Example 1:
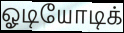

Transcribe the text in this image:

ஓடியோடிக்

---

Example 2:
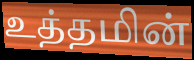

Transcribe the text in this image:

உத்தமின்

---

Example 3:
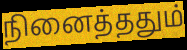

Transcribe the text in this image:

நினைத்ததும்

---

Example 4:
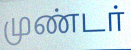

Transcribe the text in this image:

முண்டர்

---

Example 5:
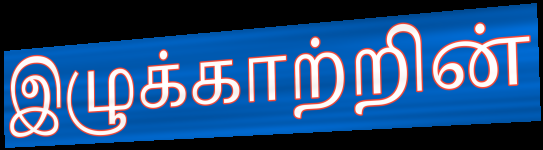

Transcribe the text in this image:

இழுக்காற்றின்